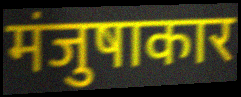
मंजुषाकार